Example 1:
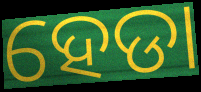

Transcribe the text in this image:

ହେଡା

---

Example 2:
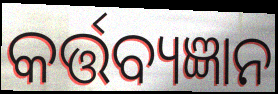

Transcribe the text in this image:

କର୍ତ୍ତବ୍ୟଜ୍ଞାନ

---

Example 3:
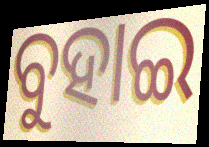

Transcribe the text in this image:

ବୁହାଇ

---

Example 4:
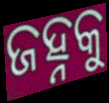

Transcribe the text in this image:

ଜହ୍ନକୁ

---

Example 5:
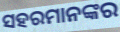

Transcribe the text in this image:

ସହରମାନଙ୍କର